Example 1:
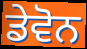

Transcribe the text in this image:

ਡੇਵੋਨ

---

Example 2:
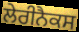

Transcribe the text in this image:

ਲੇਰੀਨੈਕਸ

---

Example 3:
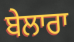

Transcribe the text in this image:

ਬੇਲਾਰਾ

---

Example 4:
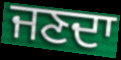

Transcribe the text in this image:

ਜਣਦਾ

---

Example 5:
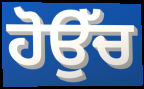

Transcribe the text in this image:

ਹੋਉੱਚ